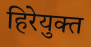
हिरेयुक्त